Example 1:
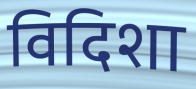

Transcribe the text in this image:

विदिशा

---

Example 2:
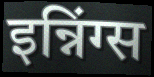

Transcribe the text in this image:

इन्निंग्स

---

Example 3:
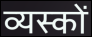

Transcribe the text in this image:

व्यस्कों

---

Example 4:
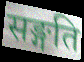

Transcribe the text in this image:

सङ्गति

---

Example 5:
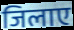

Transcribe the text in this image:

जिलाए